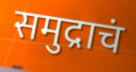
समुद्राचं